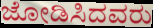
ಜೋಡಿಸಿದವರು